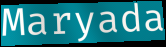
Maryada